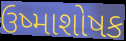
ઉષ્માશોષક